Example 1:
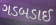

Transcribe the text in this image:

ગડબડાઈ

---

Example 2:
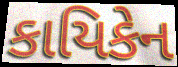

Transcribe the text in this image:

કાયિકેન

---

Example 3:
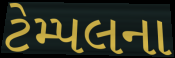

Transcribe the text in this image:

ટેમ્પલના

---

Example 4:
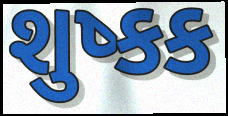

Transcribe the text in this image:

શુષ્કક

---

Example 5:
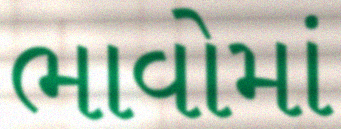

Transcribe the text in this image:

ભાવોમાં